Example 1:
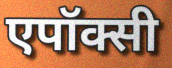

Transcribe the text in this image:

एपॉक्सी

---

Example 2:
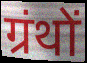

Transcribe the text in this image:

ग्रंथों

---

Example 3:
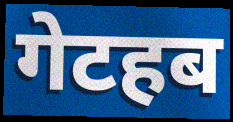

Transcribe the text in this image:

गेटहब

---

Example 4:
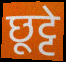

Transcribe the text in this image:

छूट्टे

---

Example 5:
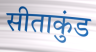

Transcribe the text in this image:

सीताकुंड